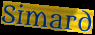
Simard